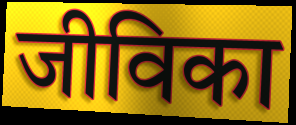
जीविका